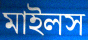
মাইলস